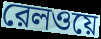
রেলওয়ে